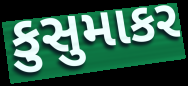
કુસુમાકર